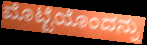
ಮೊಟ್ಟೆಯೊಂದನ್ನು